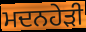
ਮਦਨਹੇੜੀ